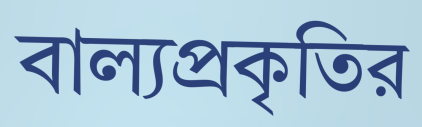
বাল্যপ্রকৃতির